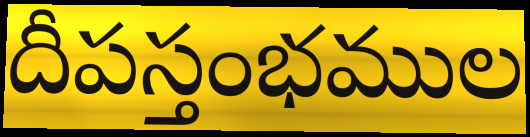
దీపస్తంభముల